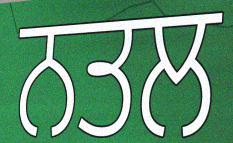
ਨਤਲ